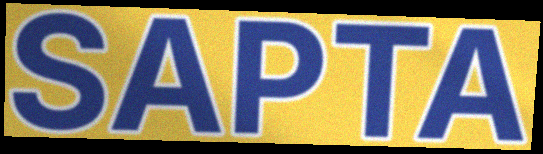
SAPTA